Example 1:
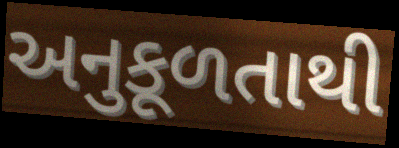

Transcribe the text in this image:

અનુકૂળતાથી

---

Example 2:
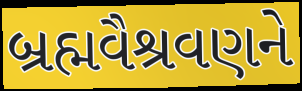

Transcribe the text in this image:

બ્રહ્મવૈશ્રવણને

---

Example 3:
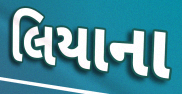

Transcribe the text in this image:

લિયાના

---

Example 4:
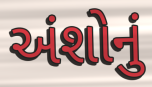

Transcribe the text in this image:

અંશોનું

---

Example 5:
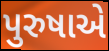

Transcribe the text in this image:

પુરુષાએ